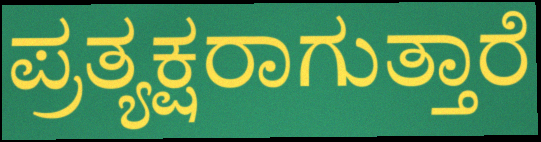
ಪ್ರತ್ಯಕ್ಷರಾಗುತ್ತಾರೆ